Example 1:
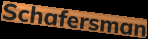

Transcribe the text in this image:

Schafersman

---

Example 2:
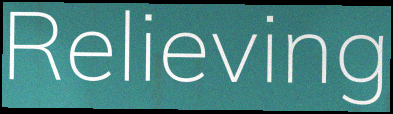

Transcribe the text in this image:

Relieving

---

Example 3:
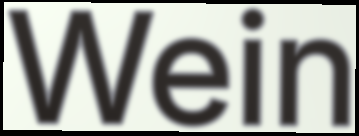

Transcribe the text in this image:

Wein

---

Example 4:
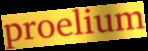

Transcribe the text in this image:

proelium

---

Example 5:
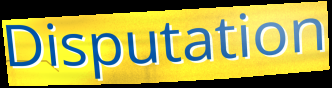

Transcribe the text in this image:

Disputation